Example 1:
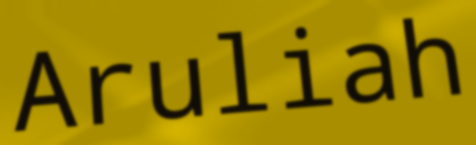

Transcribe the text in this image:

Aruliah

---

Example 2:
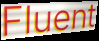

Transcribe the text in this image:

Fluent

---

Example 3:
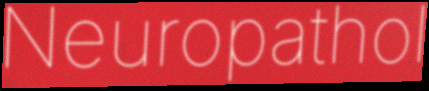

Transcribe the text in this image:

Neuropathol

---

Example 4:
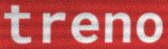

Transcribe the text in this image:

treno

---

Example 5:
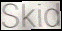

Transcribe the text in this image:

Skid